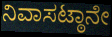
ನಿವಾಸಟ್ಠಾನೇ